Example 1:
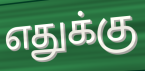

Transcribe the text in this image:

எதுக்கு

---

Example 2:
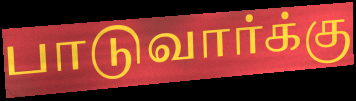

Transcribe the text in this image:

பாடுவார்க்கு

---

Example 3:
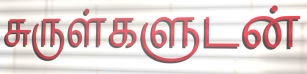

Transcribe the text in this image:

சுருள்களுடன்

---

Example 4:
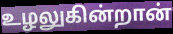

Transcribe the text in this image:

உழலுகின்றான்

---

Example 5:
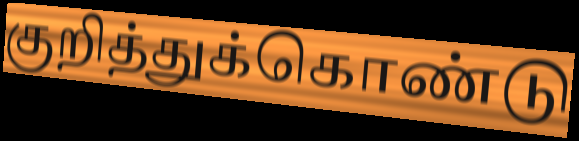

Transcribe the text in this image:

குறித்துக்கொண்டு